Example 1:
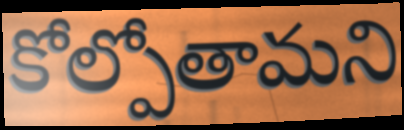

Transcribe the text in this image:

కోల్పోతామని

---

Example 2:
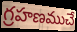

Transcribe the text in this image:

గ్రహణముచే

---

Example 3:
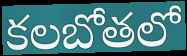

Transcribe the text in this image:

కలబోతలో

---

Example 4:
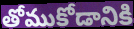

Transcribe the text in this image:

తోముకోడానికి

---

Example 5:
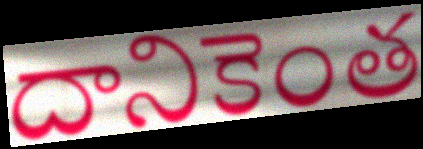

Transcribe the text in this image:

దానికెంత